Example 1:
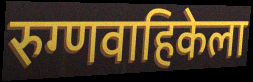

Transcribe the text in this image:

रुग्णवाहिकेला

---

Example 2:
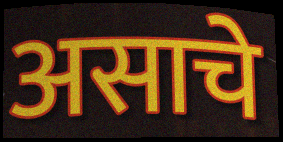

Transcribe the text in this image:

असाचे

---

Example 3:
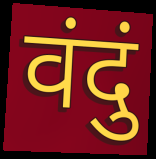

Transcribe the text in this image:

वंदुं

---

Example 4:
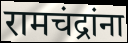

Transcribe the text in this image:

रामचंद्रांना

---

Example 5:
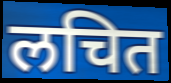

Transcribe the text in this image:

लचित